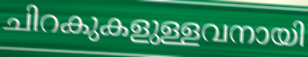
ചിറകുകളുള്ളവനായി